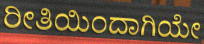
ರೀತಿಯಿಂದಾಗಿಯೇ